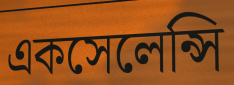
একসেলেন্সি